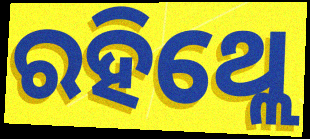
ରହିଥ୍ଲେ